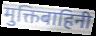
मुक्तिबाहिनी